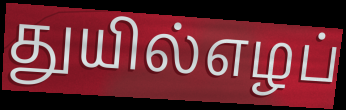
துயில்எழப்